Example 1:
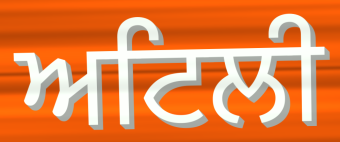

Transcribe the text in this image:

ਅਟਿਲੀ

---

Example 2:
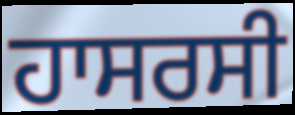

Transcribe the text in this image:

ਹਾਸਰਸੀ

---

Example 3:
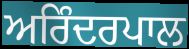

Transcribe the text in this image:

ਅਰਿੰਦਰਪਾਲ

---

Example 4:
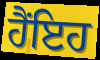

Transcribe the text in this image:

ਹੈਂਇਹ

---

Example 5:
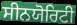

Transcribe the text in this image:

ਸੀਨਯੋਰਿਟੀ